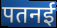
पतनई